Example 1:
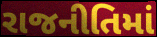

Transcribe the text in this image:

રાજનીતિમાં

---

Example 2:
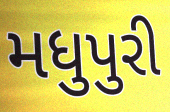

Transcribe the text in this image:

મધુપુરી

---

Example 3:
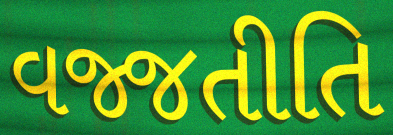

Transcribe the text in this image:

વજ્જતીતિ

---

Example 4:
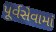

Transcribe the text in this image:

પૂર્વસેવામાં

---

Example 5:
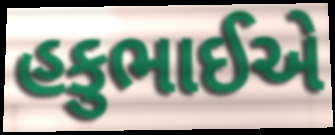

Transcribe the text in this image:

હકુભાઈએ